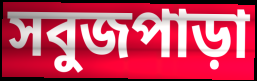
সবুজপাড়া